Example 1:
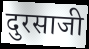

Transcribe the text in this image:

दुरसाजी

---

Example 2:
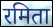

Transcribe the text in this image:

रमिता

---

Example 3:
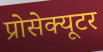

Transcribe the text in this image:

प्रोसेक्यूटर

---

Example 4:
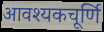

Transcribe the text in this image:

आवश्यकचूर्णि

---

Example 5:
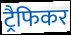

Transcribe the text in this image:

ट्रैफिकर